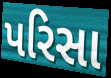
પરિસા